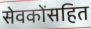
सेवकोंसहित